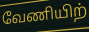
வேணியிற்